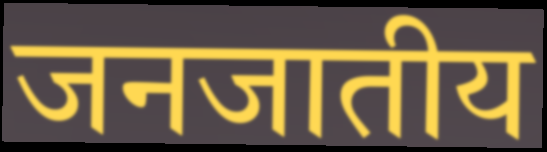
जनजातीय